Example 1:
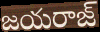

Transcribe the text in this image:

జయరాజ్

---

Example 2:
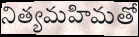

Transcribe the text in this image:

నిత్యమహిమతో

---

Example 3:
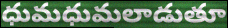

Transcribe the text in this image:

ధుమధుమలాడుతూ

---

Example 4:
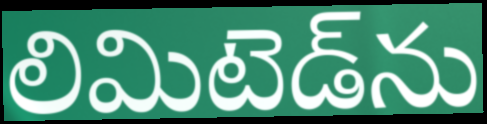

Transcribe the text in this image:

లిమిటెడ్‌ను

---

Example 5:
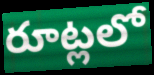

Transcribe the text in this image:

రూట్లలో